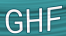
GHF